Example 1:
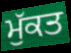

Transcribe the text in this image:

ਮੁੱਕਤ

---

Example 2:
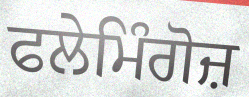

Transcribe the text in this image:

ਫਲੇਮਿੰਗੋਜ਼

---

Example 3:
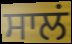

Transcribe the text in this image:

ਸਾਲਂ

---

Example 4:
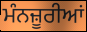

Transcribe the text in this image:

ਮੰਨਜ਼ੂਰੀਆਂ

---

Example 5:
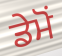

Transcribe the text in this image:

ਡੇਮੋਂ